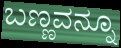
ಬಣ್ಣವನ್ನೂ